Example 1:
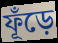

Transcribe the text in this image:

ফূঁড়ে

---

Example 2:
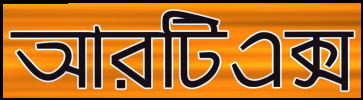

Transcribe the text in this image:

আরটিএক্স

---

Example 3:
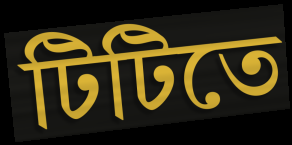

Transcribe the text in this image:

টিটিতে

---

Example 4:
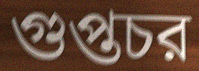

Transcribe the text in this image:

গুপ্তচর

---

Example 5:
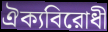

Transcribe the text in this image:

ঐক্যবিরোধী